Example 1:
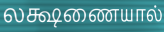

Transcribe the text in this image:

லக்ஷணையால்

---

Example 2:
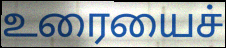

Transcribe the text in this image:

உரையைச்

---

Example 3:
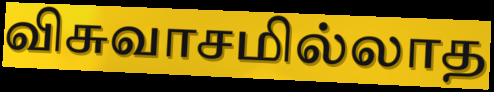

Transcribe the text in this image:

விசுவாசமில்லாத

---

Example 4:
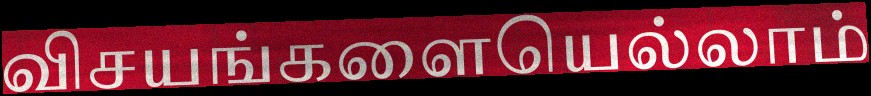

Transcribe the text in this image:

விசயங்களையெல்லாம்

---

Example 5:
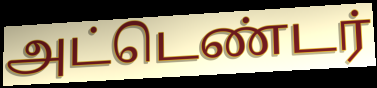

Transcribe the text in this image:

அட்டெண்டர்